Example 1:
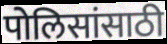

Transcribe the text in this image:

पोलिसांसाठी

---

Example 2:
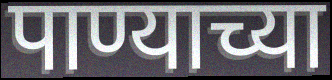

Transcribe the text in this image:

पाण्याच्या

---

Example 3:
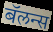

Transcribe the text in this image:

बॅलन्स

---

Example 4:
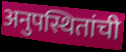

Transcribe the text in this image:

अनुपस्थितांची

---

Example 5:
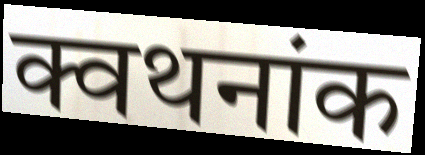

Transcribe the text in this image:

क्वथनांक